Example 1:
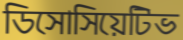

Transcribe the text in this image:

ডিসোসিয়েটিভ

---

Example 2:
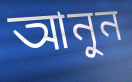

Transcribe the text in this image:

আনুন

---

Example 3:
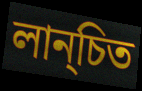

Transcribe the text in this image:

লান্চিত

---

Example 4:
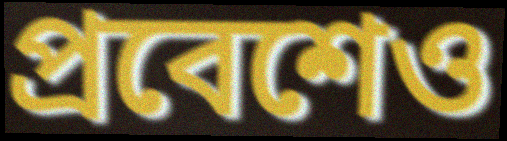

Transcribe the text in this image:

প্রবেশেও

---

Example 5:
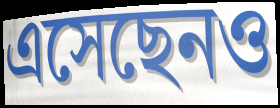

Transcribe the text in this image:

এসেছেনও